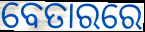
ବେତାରରେ